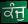
ਕੰਜੁ